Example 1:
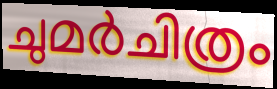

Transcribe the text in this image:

ചുമർചിത്രം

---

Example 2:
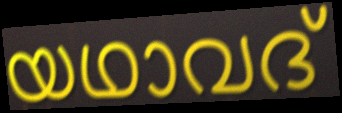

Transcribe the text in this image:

യഥാവദ്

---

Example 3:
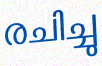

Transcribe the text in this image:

രചിച്ചു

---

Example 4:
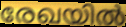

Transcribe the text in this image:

രേഖയിൽ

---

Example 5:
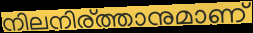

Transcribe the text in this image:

നിലനിര്ത്താനുമാണ്